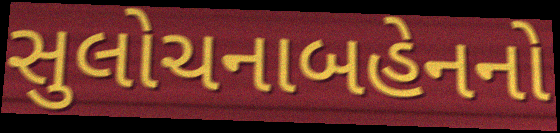
સુલોચનાબહેનનો